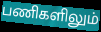
பணிகளிலும்